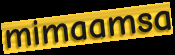
mimaamsa